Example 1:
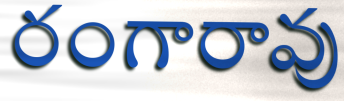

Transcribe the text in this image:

రంగారావు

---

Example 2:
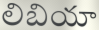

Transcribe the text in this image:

లిబియా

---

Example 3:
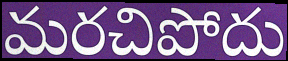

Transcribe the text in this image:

మరచిపోదు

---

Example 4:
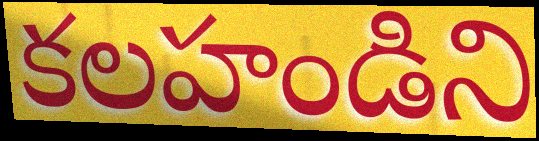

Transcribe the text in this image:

కలహండిని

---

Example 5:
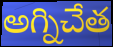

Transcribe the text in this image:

అగ్నిచేత